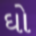
ઘો